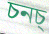
চনচ্